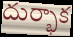
దుర్భాక